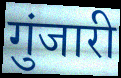
गुंजारी